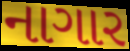
નાગાર